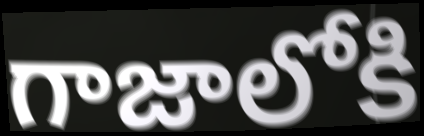
గాజాలోకి